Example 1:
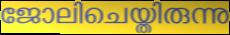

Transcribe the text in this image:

ജോലിചെയ്തിരുന്നു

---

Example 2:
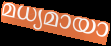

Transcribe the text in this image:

മധ്യമായാ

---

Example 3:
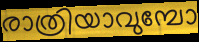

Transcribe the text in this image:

രാത്രിയാവുമ്പോ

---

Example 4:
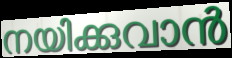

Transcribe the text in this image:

നയിക്കുവാൻ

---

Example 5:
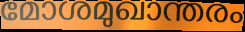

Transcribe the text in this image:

മോശമുഖാന്തരം